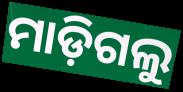
ମାଡ଼ିଗଲୁ